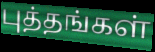
புத்தங்கள்